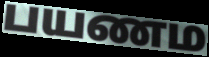
பயணம